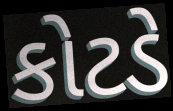
કોટડે